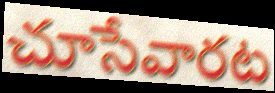
చూసేవారట